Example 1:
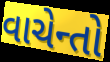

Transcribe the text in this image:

વાચેન્તો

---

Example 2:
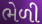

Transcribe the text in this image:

ભેળી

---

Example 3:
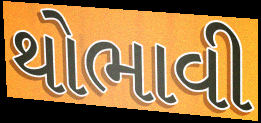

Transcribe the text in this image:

થોભાવી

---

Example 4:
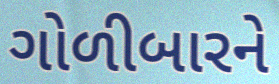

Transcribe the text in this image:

ગોળીબારને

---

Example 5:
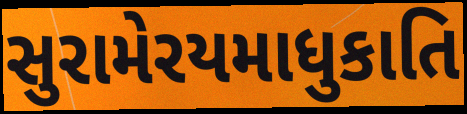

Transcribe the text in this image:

સુરામેરયમાધુકાતિ